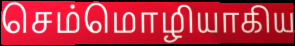
செம்மொழியாகிய